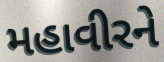
મહાવીરને